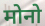
मोनो